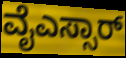
ವೈಎಸ್ಸಾರ್